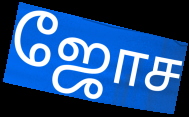
ஜோச